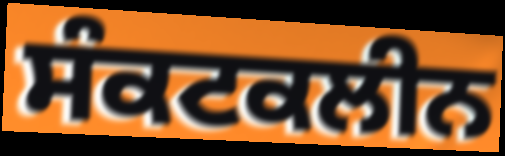
ਸੰਕਟਕਲੀਨ